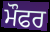
ਮੌਫਰ